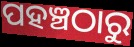
ପହଞ୍ଚଠାରୁ